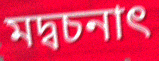
মদ্বচনাৎ